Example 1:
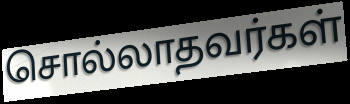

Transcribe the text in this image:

சொல்லாதவர்கள்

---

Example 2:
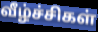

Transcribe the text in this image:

வீழ்ச்சிகள்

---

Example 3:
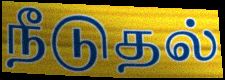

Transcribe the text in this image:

நீடுதல்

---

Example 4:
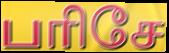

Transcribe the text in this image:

பரிசே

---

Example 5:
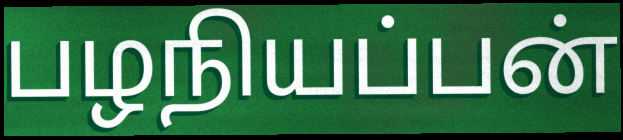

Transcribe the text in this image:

பழநியப்பன்